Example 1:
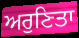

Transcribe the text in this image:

ਅਰੁਣਿਤਾ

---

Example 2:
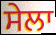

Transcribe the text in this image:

ਸੇਲਾ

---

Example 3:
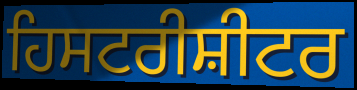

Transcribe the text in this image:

ਹਿਸਟਰੀਸ਼ੀਟਰ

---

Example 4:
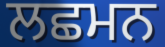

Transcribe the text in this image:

ਲਛਮਨ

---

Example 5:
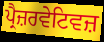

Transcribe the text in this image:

ਪ੍ਰੈਜ਼ਰਵੇਟਿਵਜ਼